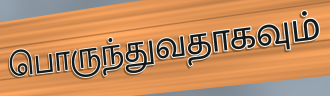
பொருந்துவதாகவும்